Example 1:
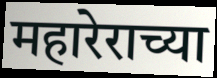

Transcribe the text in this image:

महारेराच्या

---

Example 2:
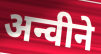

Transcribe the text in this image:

अन्वीने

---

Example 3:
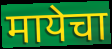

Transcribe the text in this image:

मायेचा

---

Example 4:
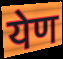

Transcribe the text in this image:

येण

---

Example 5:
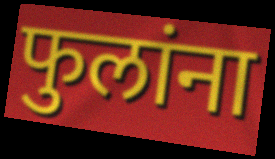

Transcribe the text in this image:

फुलांना